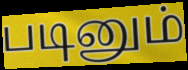
படினும்